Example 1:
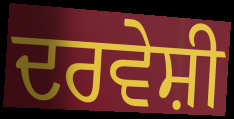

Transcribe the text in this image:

ਦਰਵੇਸ਼ੀ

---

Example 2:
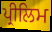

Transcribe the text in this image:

ਪ੍ਰੀਲਿਮ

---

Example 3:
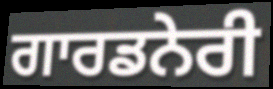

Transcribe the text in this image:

ਗਾਰਡਨੇਰੀ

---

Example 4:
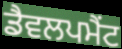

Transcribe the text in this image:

ਡੈਵਲਪਮੈਂਟ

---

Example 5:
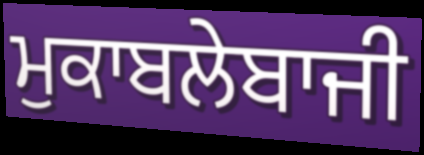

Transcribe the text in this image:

ਮੁਕਾਬਲੇਬਾਜੀ